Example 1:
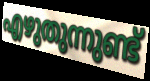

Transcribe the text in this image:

എഴുതുന്നുണ്ട്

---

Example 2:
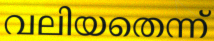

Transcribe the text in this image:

വലിയതെന്ന്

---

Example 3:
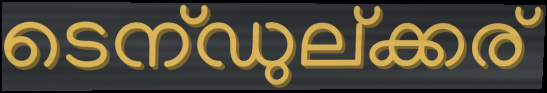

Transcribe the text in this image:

ടെന്ഡുല്ക്കര്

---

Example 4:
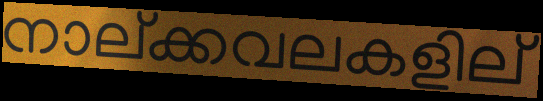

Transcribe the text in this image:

നാല്ക്കവലകളില്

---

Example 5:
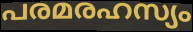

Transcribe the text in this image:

പരമരഹസ്യം